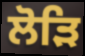
ਲੋੜਿ